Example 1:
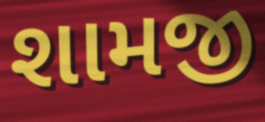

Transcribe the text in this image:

શામજી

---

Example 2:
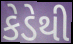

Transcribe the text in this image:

કેડેથી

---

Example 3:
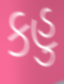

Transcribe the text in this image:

કહુ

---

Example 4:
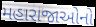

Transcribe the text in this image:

મહારાજાઓનો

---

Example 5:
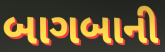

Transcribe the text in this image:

બાગબાની